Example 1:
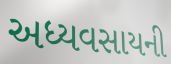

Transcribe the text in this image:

અધ્યવસાયની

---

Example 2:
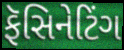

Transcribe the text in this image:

ફૅસિનેટિંગ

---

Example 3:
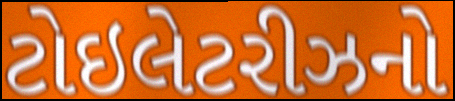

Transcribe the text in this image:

ટોઇલેટરીઝનો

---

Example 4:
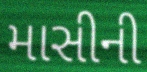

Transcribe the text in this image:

માસીની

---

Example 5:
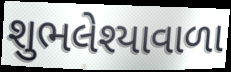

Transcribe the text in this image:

શુભલેશ્યાવાળા